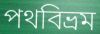
পথবিভ্রম